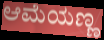
ಆಮೆಯಣ್ಣ